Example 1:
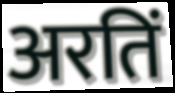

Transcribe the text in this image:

अरतिं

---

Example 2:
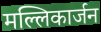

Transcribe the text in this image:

मल्लिकार्जन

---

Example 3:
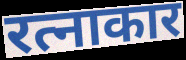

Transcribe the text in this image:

रत्नाकार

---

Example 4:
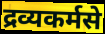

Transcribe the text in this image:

द्रव्यकर्मसे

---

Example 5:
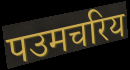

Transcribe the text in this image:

पउमचरिय